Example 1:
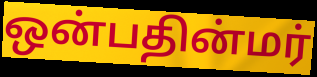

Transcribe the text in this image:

ஒன்பதின்மர்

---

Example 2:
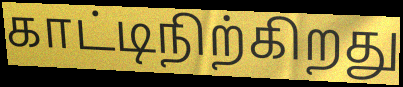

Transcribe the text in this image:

காட்டிநிற்கிறது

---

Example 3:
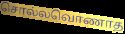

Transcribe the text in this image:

சொல்லவொணாத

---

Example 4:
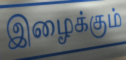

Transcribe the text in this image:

இழைக்கும்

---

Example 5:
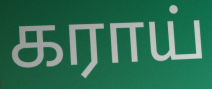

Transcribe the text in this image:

கராய்